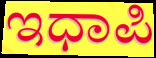
ಇಧಾಪಿ